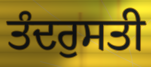
ਤੰਦਰੁਸਤੀ